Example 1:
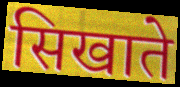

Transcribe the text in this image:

सिखाते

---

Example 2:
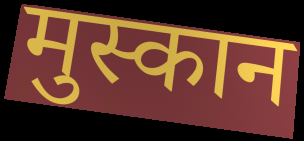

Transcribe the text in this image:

मुस्कान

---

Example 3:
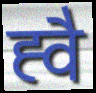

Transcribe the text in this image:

ह्वै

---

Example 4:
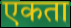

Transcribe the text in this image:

एकता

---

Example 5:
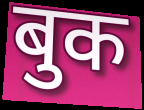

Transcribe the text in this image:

बुक